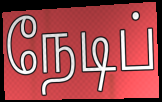
நேடிப்